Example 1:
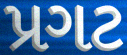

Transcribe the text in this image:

પ્રગટ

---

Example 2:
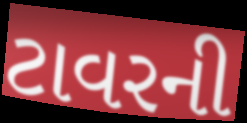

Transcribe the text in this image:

ટાવરની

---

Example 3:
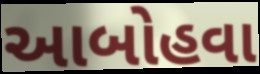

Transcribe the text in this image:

આબોહવા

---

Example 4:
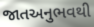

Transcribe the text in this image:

જાતઅનુભવથી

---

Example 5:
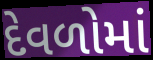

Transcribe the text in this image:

દેવળોમાં